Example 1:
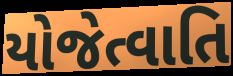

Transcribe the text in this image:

યોજેત્વાતિ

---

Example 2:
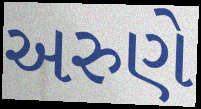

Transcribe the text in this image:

અરુણે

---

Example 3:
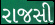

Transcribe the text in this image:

રાજસી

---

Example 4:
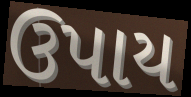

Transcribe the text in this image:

ઉપાય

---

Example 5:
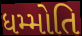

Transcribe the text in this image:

ધમ્મોતિ